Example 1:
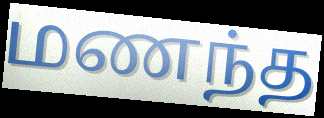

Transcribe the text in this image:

மணந்த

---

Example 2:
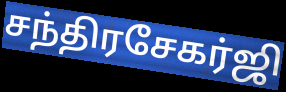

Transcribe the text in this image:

சந்திரசேகர்ஜி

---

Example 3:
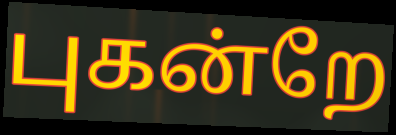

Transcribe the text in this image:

புகன்றே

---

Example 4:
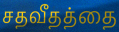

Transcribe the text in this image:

சதவீதத்தை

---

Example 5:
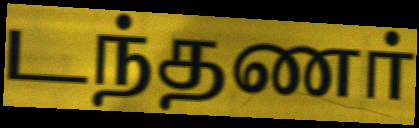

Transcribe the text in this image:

டந்தணர்